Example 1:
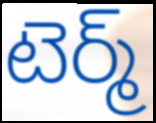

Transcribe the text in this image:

టెర్మ్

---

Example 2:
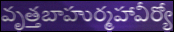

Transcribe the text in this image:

వృత్తబాహుర్మహావీర్యో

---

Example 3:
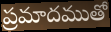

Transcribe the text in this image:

ప్రమాదముతో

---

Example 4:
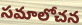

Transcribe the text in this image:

సమాలోచన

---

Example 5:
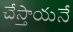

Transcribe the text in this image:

చేస్తాయనే